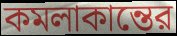
কমলাকান্তের